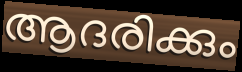
ആദരിക്കും